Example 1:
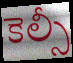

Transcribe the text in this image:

కెల్సీ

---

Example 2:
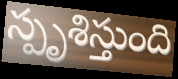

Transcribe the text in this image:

స్పృశిస్తుంది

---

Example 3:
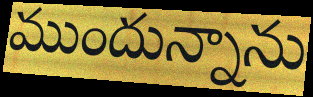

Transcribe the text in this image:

ముందున్నాను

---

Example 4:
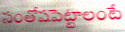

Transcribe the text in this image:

సంతోషపెట్టాలంటే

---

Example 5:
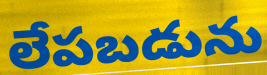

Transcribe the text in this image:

లేపబడును